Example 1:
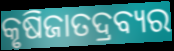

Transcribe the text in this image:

କୃଷିଜାତଦ୍ରବ୍ୟର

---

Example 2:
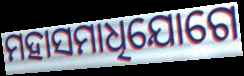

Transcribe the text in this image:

ମହାସମାଧିଯୋଗେ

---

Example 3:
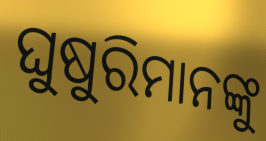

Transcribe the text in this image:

ଘୁଷୁରିମାନଙ୍କୁ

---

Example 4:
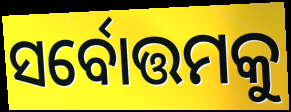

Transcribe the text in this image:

ସର୍ବୋତ୍ତମକୁ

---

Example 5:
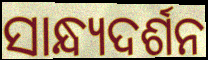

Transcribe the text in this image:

ସାନ୍ଧ୍ୟଦର୍ଶନ